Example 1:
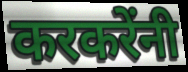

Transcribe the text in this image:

करकरेंनी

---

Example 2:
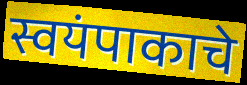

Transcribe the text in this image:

स्वयंपाकाचे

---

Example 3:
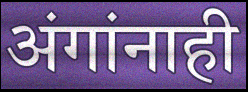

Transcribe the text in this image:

अंगांनाही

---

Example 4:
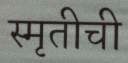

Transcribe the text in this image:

स्मृतीची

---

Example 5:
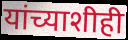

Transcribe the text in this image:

यांच्याशीही